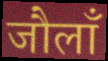
जौलाँ